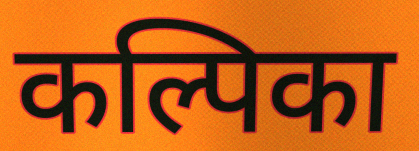
कल्पिका